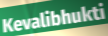
Kevalibhukti